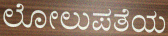
ಲೋಲುಪತೆಯ